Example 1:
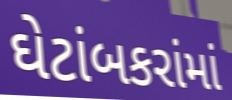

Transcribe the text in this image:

ઘેટાંબકરાંમાં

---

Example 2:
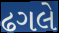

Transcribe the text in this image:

ઢગલે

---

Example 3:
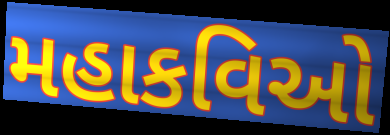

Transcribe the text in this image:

મહાકવિઓ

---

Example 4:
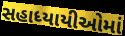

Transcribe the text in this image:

સહાધ્યાયીઓમાં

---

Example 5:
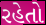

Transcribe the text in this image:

રહેતો